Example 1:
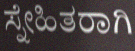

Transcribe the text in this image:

ಸ್ನೇಹಿತರಾಗಿ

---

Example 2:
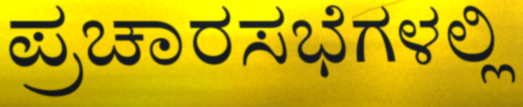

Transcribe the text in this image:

ಪ್ರಚಾರಸಭೆಗಳಲ್ಲಿ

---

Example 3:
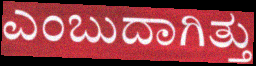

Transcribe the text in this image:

ಎಂಬುದಾಗಿತ್ತು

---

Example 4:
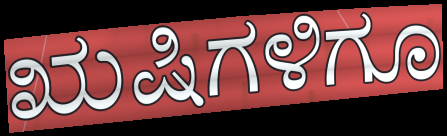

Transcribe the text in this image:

ಋಷಿಗಳಿಗೂ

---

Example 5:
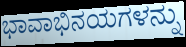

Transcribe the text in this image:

ಭಾವಾಭಿನಯಗಳನ್ನು